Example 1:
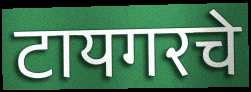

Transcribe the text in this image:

टायगरचे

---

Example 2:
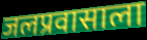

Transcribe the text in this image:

जलप्रवासाला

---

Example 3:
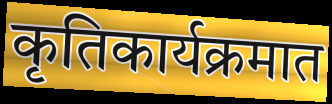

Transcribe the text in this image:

कृतिकार्यक्रमात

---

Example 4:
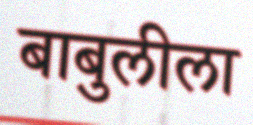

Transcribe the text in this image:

बाबुलीला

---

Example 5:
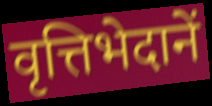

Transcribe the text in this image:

वृत्तिभेदानें